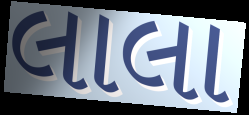
લાલા